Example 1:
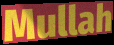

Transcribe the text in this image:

Mullah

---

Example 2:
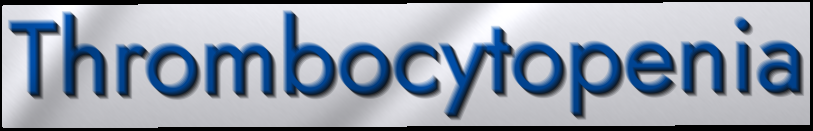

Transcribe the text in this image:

Thrombocytopenia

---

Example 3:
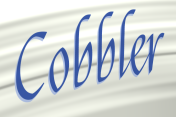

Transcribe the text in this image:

Cobbler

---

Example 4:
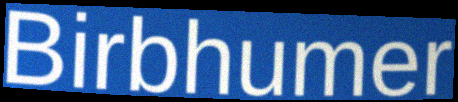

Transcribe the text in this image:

Birbhumer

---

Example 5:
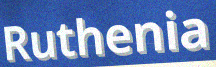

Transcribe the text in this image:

Ruthenia